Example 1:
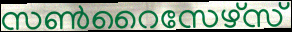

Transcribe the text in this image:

സൺറൈസേഴ്സ്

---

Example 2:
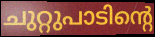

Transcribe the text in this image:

ചുറ്റുപാടിന്റെ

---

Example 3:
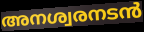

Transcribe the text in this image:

അനശ്വരനടൻ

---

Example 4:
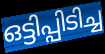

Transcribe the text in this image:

ഒട്ടിപ്പിടിച്ച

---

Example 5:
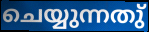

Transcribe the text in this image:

ചെയ്യുന്നതു്